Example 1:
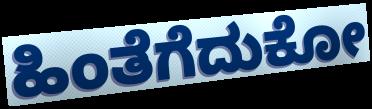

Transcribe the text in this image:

ಹಿಂತೆಗೆದುಕೋ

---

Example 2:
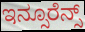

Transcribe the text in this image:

ಇನ್ಸೂರೆನ್ಸ್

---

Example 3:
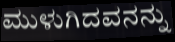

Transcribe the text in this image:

ಮುಳುಗಿದವನನ್ನು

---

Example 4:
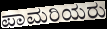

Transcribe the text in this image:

ಪಾಮರಿಯರು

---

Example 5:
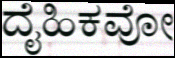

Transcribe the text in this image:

ದೈಹಿಕವೋ